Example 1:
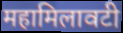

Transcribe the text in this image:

महामिलावटी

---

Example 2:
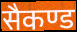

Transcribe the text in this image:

सैकण्ड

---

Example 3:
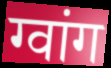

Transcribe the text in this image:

ग्वांग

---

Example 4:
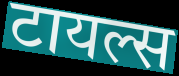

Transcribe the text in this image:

टायल्स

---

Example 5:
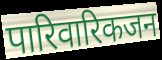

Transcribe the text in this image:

पारिवारिकजन